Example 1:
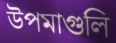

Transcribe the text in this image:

উপমাগুলি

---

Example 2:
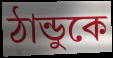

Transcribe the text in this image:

ঠান্ডুকে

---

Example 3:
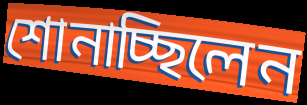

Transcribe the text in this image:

শোনাচ্ছিলেন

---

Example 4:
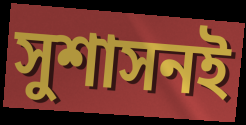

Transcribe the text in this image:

সুশাসনই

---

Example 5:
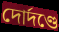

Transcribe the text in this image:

দোর্দণ্ডে